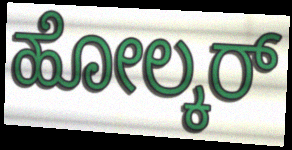
ಹೋಲ್ಕರ್